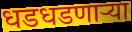
धडधडणाऱ्या